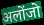
अलोंजो